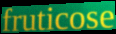
fruticose